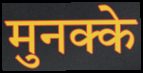
मुनक्के